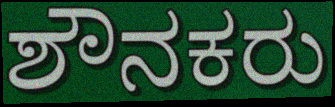
ಶೌನಕರು